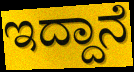
ಇದ್ದಾನೆ